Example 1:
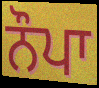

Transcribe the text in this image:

ਨੌਪਾ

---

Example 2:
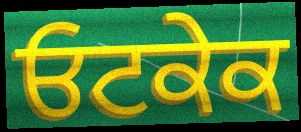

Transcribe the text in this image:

ਓਟਕੇਕ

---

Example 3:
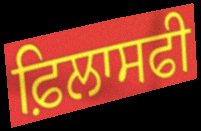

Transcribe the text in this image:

ਫ਼ਿਲਾਸਫੀ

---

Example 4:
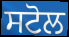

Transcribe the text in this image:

ਸਟੋਲ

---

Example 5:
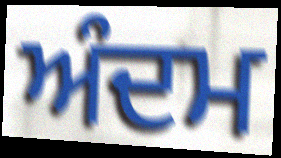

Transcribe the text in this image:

ਅੰਦਮ